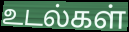
உடல்கள்